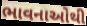
ભાવનાઓથી